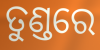
ତୁଣ୍ଡରେ